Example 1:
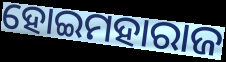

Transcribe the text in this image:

ହୋଇମହାରାଜ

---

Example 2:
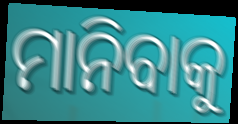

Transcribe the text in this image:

ମାନିବାକୁ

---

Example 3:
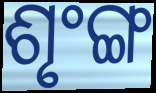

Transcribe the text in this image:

ଶୃଂଙ୍ଗ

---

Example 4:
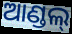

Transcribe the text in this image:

ଆଣ୍ଡଲ୍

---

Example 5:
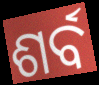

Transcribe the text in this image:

ଶର୍ବ